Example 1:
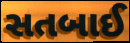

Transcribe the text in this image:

સતબાઈ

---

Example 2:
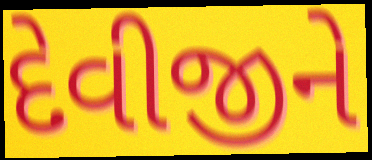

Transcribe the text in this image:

દેવીજીને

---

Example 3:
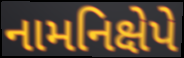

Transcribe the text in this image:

નામનિક્ષેપે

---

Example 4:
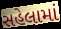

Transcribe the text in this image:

સહેલામાં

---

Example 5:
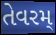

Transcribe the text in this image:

તેવરમ્